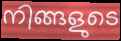
നിങ്ങളുടെ